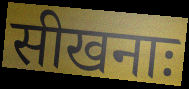
सीखनाः